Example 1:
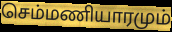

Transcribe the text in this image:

செம்மணியாரமும்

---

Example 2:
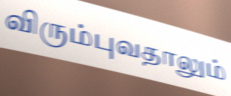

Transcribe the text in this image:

விரும்புவதாலும்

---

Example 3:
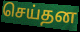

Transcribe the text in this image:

செய்தன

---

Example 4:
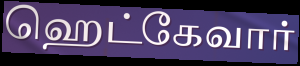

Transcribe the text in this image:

ஹெட்கேவார்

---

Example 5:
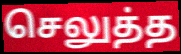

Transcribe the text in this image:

செலுத்த